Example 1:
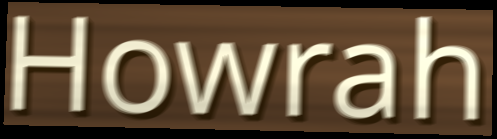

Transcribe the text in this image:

Howrah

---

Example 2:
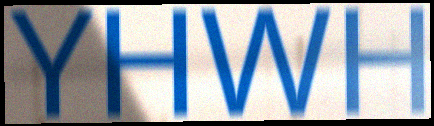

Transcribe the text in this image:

YHWH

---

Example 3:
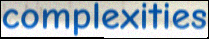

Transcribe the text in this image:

complexities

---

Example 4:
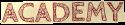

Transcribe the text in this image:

ACADEMY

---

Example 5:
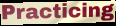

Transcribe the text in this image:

Practicing